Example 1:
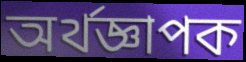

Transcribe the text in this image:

অর্থজ্ঞাপক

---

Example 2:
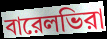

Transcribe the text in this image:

বারেলভিরা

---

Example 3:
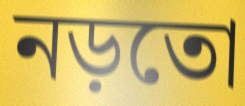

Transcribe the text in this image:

নড়তো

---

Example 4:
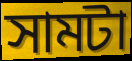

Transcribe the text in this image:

সামটা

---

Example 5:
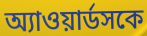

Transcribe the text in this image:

অ্যাওয়ার্ডসকে